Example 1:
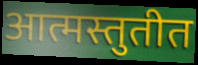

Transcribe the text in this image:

आत्मस्तुतीत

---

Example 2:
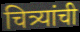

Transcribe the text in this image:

चित्र्यांची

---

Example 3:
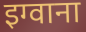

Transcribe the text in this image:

इग्वाना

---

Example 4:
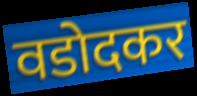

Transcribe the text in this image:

वडोदकर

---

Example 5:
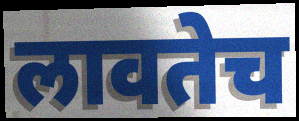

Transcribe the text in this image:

लावतेच